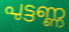
പുട്ടണ്ണ